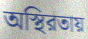
অস্থিরতায়